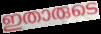
ഇതാരുടെ